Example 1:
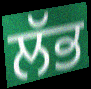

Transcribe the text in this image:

ਲੱਭ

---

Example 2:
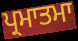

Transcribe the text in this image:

ਪ੍ਰਮਾਤਮਾ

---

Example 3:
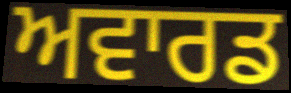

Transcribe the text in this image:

ਅਵਾਰਡ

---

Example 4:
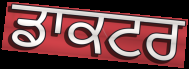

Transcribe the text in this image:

ਡਾਕਟਰ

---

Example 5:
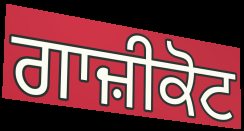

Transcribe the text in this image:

ਗਾਜ਼ੀਕੋਟ